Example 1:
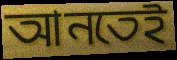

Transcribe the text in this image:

আনতেই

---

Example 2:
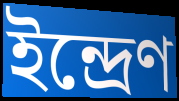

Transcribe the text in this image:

ইন্দ্রেণ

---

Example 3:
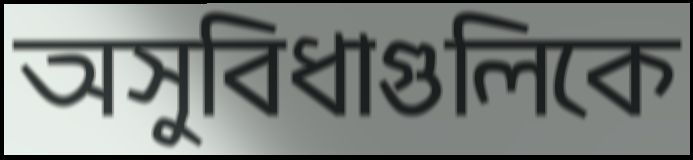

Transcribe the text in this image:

অসুবিধাগুলিকে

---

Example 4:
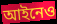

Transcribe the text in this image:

আইনেও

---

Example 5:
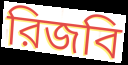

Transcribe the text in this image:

রিজবি